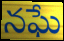
నఘే